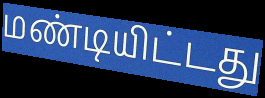
மண்டியிட்டது